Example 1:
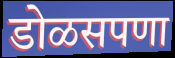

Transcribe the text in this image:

डोळसपणा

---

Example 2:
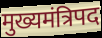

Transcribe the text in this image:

मुख्यमंत्रिपद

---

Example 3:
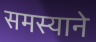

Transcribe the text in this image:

समस्याने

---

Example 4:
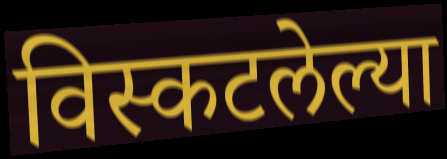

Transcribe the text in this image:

विस्कटलेल्या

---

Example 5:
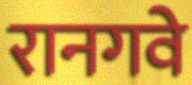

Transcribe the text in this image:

रानगवे